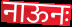
नाऊनः